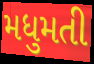
મધુમતી